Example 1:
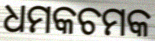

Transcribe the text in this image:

ଧମକଚମକ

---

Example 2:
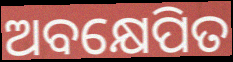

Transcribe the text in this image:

ଅବକ୍ଷେପିତ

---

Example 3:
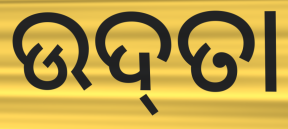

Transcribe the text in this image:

ଉଦ୍‌ତା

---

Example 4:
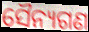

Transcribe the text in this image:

ସୈନ୍ୟଗଣ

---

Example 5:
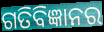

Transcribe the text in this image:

ଗତିବିଜ୍ଞାନର